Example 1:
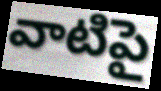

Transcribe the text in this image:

వాటిపై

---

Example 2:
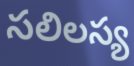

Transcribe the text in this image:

సలిలస్య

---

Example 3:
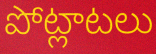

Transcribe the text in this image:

పోట్లాటలు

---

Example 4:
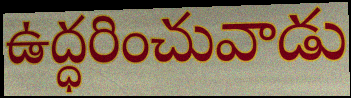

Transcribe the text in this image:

ఉద్ధరించువాడు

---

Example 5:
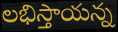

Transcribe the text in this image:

లభిస్తాయన్న